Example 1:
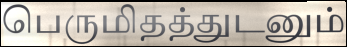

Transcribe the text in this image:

பெருமிதத்துடனும்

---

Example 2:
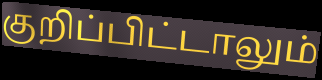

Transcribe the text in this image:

குறிப்பிட்டாலும்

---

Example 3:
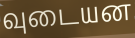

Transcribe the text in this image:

வுடையன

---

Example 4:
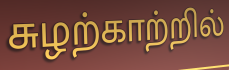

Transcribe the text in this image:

சுழற்காற்றில்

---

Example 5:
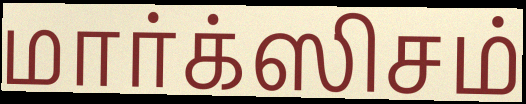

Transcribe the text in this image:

மார்க்ஸிசம்